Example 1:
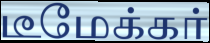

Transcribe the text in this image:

டீமேக்கர்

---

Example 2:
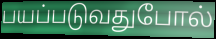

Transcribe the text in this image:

பயப்படுவதுபோல்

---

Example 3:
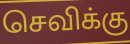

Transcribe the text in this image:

செவிக்கு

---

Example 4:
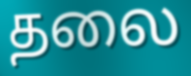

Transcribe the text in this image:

தலை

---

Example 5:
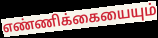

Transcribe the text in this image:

எண்ணிக்கையையும்